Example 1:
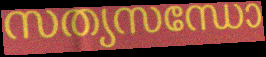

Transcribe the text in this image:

സത്യസന്ധോ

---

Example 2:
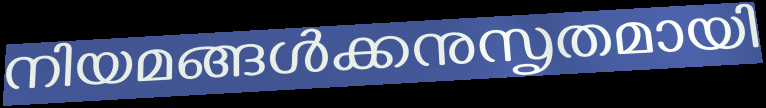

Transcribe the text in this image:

നിയമങ്ങൾക്കനുസൃതമായി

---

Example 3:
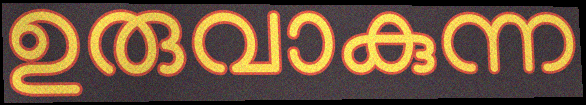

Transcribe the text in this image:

ഉരുവാകുന്ന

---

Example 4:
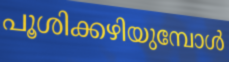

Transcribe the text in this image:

പൂശിക്കഴിയുമ്പോൾ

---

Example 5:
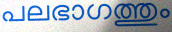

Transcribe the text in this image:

പലഭാഗത്തും